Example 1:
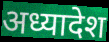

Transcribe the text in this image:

अध्यादेश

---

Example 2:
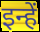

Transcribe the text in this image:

इन्हें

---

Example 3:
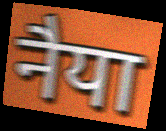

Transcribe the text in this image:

नैया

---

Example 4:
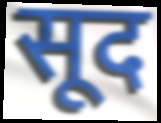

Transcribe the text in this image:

सूद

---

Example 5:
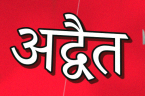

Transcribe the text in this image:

अद्वैत